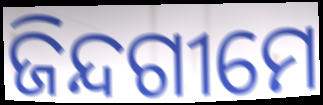
ଜିନ୍ଦଗୀମେ